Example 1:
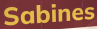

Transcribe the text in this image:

Sabines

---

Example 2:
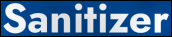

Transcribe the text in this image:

Sanitizer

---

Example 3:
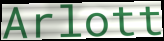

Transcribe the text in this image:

Arlott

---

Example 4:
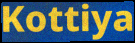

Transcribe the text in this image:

Kottiya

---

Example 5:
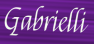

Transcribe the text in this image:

Gabrielli